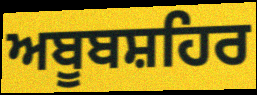
ਅਬੂਬਸ਼ਹਿਰ